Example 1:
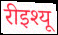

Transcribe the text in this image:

रीइश्यू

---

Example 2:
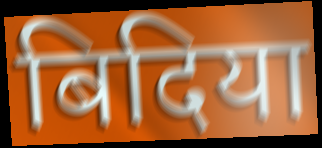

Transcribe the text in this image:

बिदिया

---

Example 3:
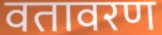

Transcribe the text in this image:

वतावरण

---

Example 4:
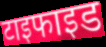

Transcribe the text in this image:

टाइफाइड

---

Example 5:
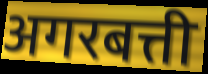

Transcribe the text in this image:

अगरबत्ती